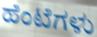
ಹೆಂಟೆಗಳು